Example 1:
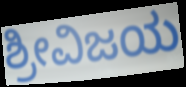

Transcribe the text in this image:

ಶ್ರೀವಿಜಯ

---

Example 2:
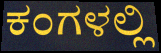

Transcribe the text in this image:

ಕಂಗಳಲ್ಲಿ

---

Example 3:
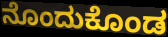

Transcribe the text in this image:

ನೊಂದುಕೊಂಡ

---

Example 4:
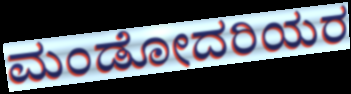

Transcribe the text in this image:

ಮಂಡೋದರಿಯರ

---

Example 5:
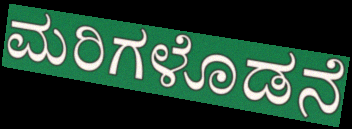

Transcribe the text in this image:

ಮರಿಗಳೊಡನೆ